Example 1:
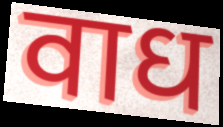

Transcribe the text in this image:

वाध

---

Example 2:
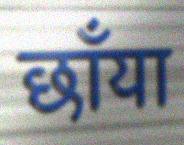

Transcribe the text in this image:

छाँया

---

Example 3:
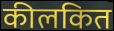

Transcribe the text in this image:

कीलकित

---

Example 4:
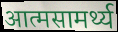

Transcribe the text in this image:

आत्मसामर्थ्य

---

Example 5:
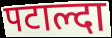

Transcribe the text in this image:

पटाल्दा